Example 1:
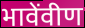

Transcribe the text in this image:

भावेंवीण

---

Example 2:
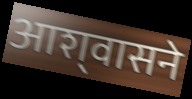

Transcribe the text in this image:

आश्वासने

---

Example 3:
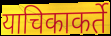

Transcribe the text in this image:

याचिकाकर्ते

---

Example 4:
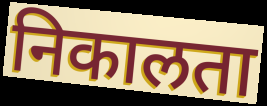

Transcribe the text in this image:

निकालता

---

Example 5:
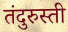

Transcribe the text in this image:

तंदुरुस्ती